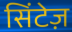
सिंटेज़